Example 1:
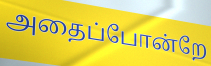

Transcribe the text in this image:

அதைப்போன்றே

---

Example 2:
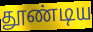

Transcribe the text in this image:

தூண்டிய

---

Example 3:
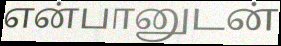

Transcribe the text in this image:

என்பானுடன்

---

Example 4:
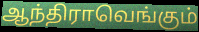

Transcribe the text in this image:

ஆந்திராவெங்கும்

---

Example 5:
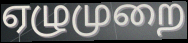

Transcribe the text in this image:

ஏழுமுறை